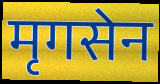
मृगसेन